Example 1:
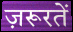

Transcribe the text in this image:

ज़रूरतें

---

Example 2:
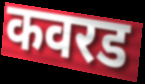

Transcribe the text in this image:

कवरड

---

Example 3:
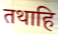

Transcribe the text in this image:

तथाहि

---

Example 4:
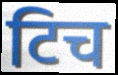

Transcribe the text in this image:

टिच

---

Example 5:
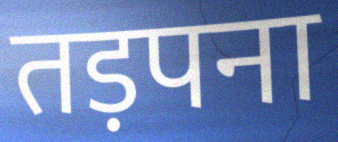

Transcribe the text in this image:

तड़पना